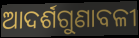
ଆଦର୍ଶଗୁଣାବଳୀ